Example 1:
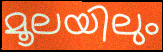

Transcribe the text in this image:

മൂലയിലും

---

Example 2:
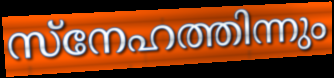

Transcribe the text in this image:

സ്നേഹത്തിന്നും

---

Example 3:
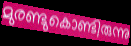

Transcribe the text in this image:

മുരണ്ടുകൊണ്ടിരുന്നു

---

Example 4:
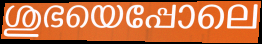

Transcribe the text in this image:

ശുഭയെപ്പോലെ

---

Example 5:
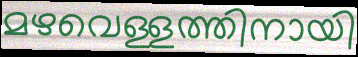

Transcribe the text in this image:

മഴവെള്ളത്തിനായി